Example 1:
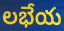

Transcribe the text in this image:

లభేయ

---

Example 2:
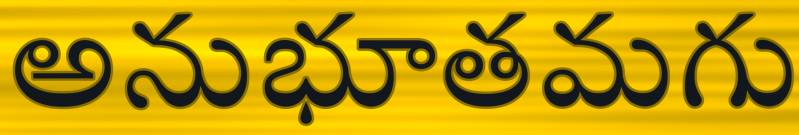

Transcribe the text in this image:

అనుభూతమగు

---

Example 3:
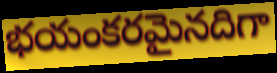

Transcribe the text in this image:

భయంకరమైనదిగా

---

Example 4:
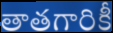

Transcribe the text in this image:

తాతగారికీ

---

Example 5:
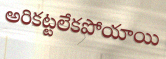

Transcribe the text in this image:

అరికట్టలేకపోయాయి